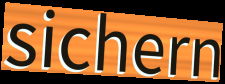
sichern